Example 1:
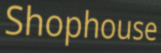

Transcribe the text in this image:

Shophouse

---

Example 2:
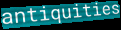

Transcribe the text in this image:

antiquities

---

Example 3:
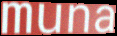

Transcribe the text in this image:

muna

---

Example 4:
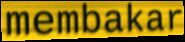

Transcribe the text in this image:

membakar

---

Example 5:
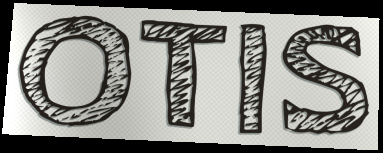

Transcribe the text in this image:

OTIS